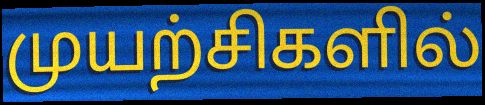
முயற்சிகளில்